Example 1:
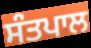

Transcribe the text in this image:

ਸੰਤਪਾਲ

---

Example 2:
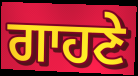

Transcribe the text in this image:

ਗਾਹਣੇ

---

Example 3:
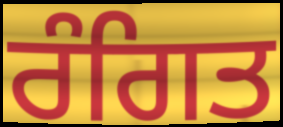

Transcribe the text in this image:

ਰੰਗਿਤ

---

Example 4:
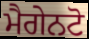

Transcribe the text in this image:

ਮੈਗੇਨਟੋ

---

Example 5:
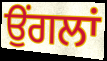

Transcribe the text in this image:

ਉੰਗਲਾਂ